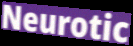
Neurotic